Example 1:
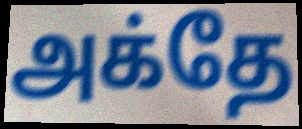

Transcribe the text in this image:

அக்தே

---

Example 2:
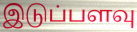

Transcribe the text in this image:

இடுப்பளவு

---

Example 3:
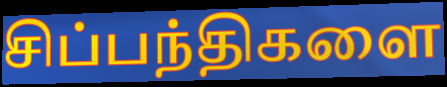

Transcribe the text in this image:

சிப்பந்திகளை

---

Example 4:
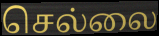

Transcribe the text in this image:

செல்லை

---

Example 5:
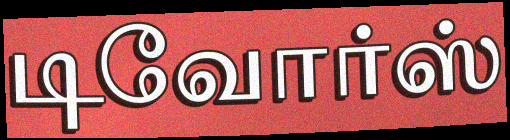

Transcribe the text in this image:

டிவோர்ஸ்